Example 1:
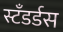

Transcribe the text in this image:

स्टँडर्डस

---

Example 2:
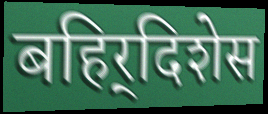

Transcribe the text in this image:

बहिर्दिशेस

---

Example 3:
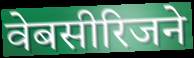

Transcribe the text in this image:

वेबसीरिजने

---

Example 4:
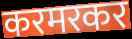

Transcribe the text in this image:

करमरकर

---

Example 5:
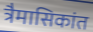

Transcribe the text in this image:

त्रैमासिकांत